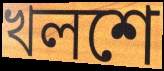
খলশে